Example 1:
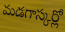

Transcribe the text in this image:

మడగాస్కర్లో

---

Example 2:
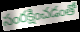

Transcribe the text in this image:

సంరక్షించడంతో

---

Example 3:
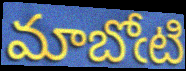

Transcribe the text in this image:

మాబోఁటి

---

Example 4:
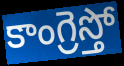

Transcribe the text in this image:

కాంగ్రెస్తో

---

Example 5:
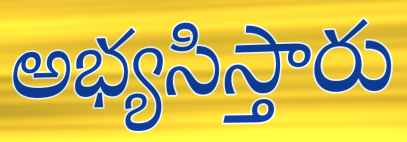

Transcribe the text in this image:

అభ్యసిస్తారు